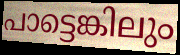
പാട്ടെങ്കിലും